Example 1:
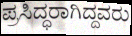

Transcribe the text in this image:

ಪ್ರಸಿದ್ಧರಾಗಿದ್ದವರು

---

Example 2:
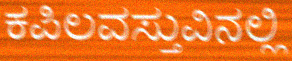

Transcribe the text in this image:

ಕಪಿಲವಸ್ತುವಿನಲ್ಲಿ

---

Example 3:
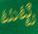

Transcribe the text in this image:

ಟುಟ್ಟಿ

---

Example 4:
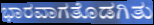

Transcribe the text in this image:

ಭಾರವಾಗತೊಡಗಿತು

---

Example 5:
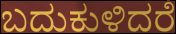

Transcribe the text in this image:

ಬದುಕುಳಿದರೆ